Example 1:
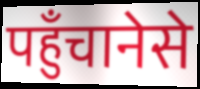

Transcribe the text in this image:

पहुँचानेसे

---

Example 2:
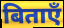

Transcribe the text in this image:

बिताएँ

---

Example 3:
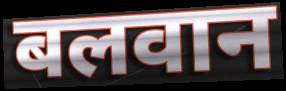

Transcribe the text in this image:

बलवान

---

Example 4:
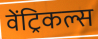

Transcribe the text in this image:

वेंट्रिकल्स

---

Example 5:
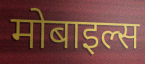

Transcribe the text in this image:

मोबाइल्स